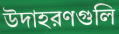
উদাহরণগুলি